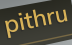
pithru